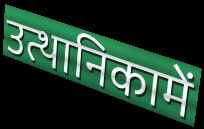
उत्थानिकामें